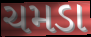
ચમડા